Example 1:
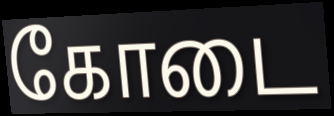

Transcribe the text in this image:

கோடை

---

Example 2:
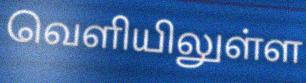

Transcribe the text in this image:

வெளியிலுள்ள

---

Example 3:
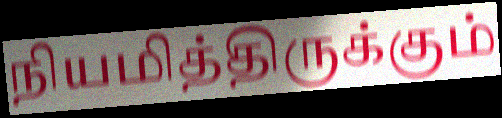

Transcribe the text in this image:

நியமித்திருக்கும்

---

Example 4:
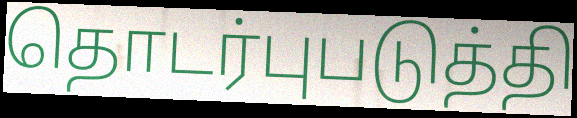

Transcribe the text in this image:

தொடர்புபடுத்தி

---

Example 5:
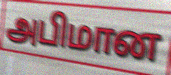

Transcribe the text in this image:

அபிமான